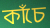
কাঁচে